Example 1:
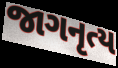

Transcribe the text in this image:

જાગનૃત્ય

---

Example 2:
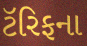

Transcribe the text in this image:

ટૅરિફના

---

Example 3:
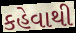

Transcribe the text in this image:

કહેવાથી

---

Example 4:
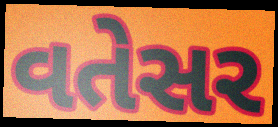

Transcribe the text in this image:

વતેસર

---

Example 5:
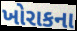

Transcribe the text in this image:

ખોરાકના